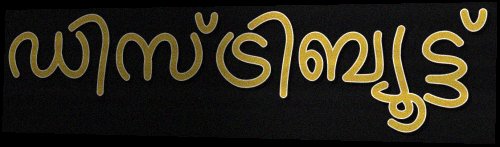
ഡിസ്ട്രിബ്യൂട്ട്